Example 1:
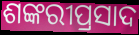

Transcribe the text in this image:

ଶଙ୍କରୀପ୍ରସାଦ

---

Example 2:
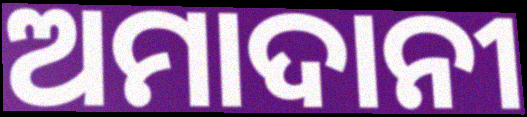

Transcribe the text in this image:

ଅମାଦାନୀ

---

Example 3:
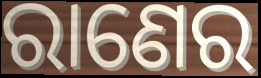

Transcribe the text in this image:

ରାଣେର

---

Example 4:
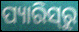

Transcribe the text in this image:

ପ୍ୟାରିସ୍‌ରୁ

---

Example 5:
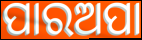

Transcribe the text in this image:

ପାରଅପା